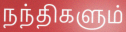
நந்திகளும்